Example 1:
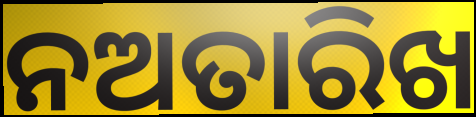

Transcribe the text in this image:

ନଅତାରିଖ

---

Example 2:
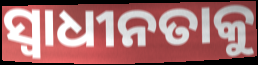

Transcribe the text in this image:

ସ୍ବାଧୀନତାକୁ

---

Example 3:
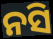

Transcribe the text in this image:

ନସି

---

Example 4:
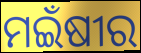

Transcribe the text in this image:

ମଇଁଷୀର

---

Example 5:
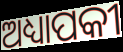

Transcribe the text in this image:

ଅଧ୍ୟାପକୀ